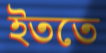
ইততে